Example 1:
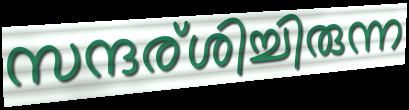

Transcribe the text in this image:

സന്ദര്ശിച്ചിരുന്ന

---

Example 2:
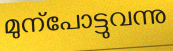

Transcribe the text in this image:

മുന്പോട്ടുവന്നു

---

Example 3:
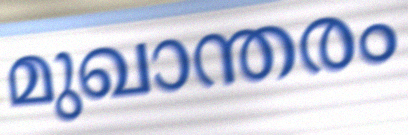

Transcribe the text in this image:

മുഖാന്തരം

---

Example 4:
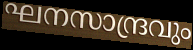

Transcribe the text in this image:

ഘനസാന്ദ്രവും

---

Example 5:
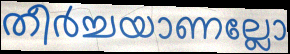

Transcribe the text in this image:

തീർച്ചയാണല്ലോ